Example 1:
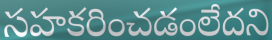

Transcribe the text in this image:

సహకరించడంలేదని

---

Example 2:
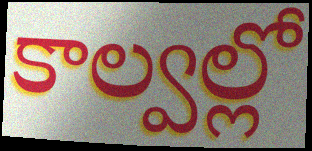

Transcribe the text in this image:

కాల్వల్లో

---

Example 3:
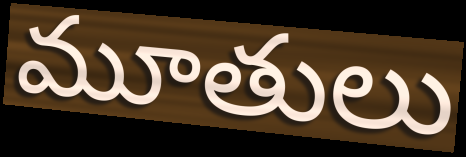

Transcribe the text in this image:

మూతులు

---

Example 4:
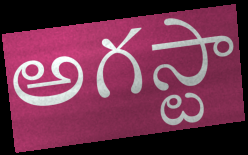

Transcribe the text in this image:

అగస్టా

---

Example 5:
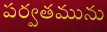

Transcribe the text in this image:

పర్వతమును